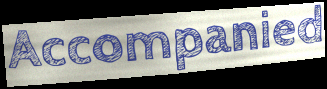
Accompanied